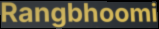
Rangbhoomi